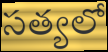
సత్యలో